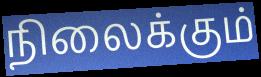
நிலைக்கும்